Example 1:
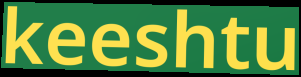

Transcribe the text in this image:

keeshtu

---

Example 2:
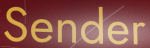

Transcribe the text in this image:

Sender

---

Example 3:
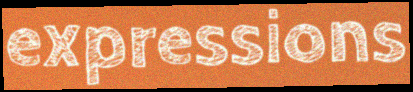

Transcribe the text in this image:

expressions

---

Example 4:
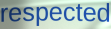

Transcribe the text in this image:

respected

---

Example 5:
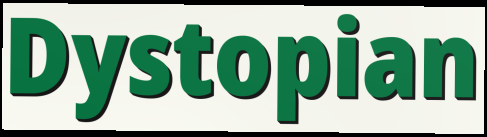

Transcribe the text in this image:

Dystopian